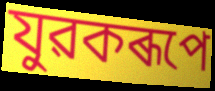
যুৱকৰূপে